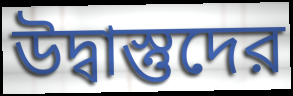
উদ্বাস্তুদের